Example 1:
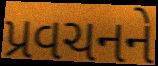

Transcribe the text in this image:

પ્રવચનને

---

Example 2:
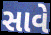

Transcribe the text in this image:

સાવે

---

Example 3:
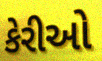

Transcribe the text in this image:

કેરીઓ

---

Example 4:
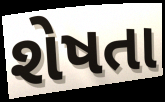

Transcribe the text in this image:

શેષતા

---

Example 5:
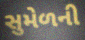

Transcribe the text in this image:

સુમેળની